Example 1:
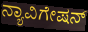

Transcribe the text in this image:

ನ್ಯಾವಿಗೇಷನ್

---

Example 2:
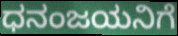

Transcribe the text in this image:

ಧನಂಜಯನಿಗೆ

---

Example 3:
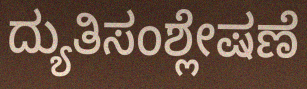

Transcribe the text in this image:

ದ್ಯುತಿಸಂಶ್ಲೇಷಣೆ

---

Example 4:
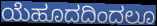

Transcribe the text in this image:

ಯೆಹೂದದಿಂದಲೂ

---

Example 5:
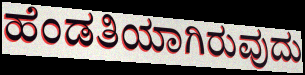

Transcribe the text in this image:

ಹೆಂಡತಿಯಾಗಿರುವುದು